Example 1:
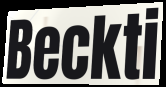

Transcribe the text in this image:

Beckti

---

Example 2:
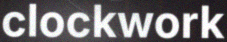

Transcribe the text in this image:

clockwork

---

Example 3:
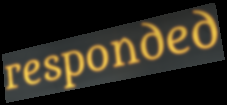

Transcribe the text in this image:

responded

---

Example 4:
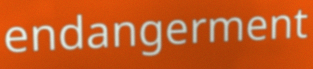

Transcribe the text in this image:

endangerment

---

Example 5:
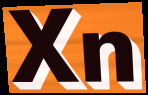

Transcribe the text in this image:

Xn